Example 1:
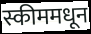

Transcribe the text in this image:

स्कीममधून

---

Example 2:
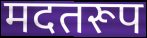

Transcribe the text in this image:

मदतरूप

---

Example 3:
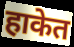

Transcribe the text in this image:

हाकेत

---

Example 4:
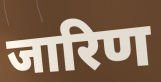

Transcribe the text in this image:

जारिण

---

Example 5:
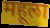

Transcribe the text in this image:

महूला